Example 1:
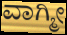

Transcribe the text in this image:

ವಾಗ್ಮೀ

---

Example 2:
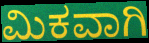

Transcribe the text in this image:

ಮಿಕವಾಗಿ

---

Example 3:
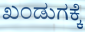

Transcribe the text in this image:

ಖಂಡುಗಕ್ಕೆ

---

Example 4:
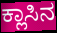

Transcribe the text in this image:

ಕ್ಲಾಸಿನ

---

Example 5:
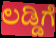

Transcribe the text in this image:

ಲಡ್ಡಿಗೆ